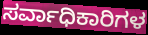
ಸರ್ವಾಧಿಕಾರಿಗಳ